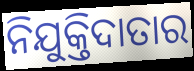
ନିଯୁକ୍ତିଦାତାର